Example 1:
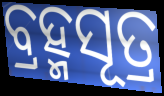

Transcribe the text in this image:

ବ୍ରହ୍ମସୂତ୍ର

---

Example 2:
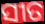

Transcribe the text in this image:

ସୀତ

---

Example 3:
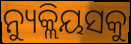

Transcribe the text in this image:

ନ୍ୟୁକ୍ଲିୟସକୁ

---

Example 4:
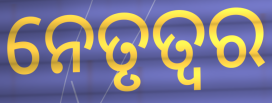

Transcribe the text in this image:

ନେତୃତ୍ୱର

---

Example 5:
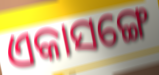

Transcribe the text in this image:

ଏକାସଙ୍ଗେ